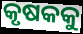
କୃଷକକୁ